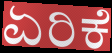
ಏರಿಕೆ